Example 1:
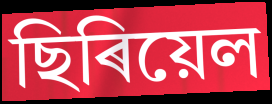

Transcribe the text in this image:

ছিৰিয়েল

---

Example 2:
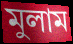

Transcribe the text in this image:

মুলাম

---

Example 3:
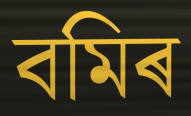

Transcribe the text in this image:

বমিৰ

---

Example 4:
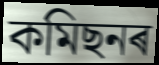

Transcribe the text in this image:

কমিছনৰ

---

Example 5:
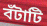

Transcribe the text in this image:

বঁটাটি